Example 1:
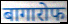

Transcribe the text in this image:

बागारोफ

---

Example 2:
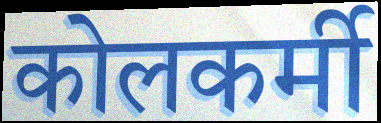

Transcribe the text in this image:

कोलकर्मी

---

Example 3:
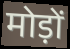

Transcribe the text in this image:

मोड़ों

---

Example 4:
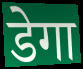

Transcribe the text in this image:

डेगा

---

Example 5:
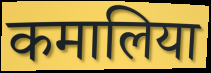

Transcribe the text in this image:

कमालिया